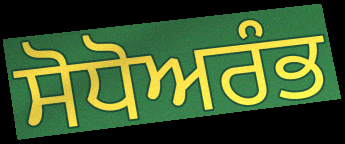
ਸੋਧੋਅਰੰਭ